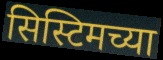
सिस्टिमच्या